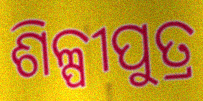
ଶିଳ୍ପୀପୁତ୍ର